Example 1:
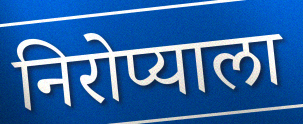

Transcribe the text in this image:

निरोप्याला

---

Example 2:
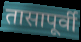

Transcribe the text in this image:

तासापूर्वी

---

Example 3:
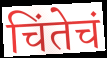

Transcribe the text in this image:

चिंतेचं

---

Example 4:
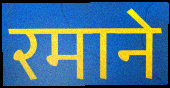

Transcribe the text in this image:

रमाने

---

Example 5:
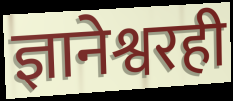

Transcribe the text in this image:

ज्ञानेश्वरही